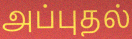
அப்புதல்